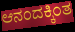
ಆನಂದಕ್ಕಿಂತ